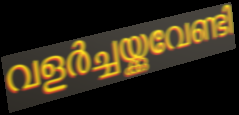
വളർച്ചയ്ക്കുവേണ്ടി